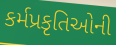
કર્મપ્રકૃતિઓની